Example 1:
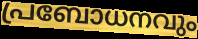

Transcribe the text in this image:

പ്രബോധനവും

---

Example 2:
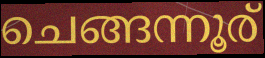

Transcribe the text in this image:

ചെങ്ങന്നൂര്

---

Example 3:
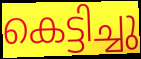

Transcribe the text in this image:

കെട്ടിച്ചു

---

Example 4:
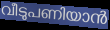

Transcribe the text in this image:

വീടുപണിയാൻ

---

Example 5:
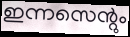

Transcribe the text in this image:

ഇന്നസെന്റും